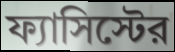
ফ্যাসিস্টের